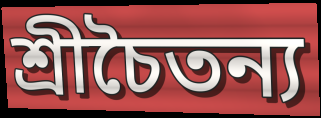
শ্রীচৈতন্য